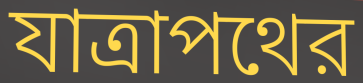
যাত্রাপথের